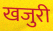
खजुरी